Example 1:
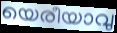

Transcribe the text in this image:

യെരീയാവു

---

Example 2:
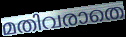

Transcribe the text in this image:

മതിവരാതെ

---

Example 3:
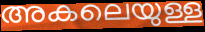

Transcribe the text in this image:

അകലെയുള്ള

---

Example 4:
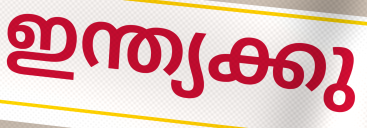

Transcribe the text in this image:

ഇന്ത്യക്കു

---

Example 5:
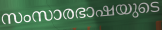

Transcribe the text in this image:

സംസാരഭാഷയുടെ